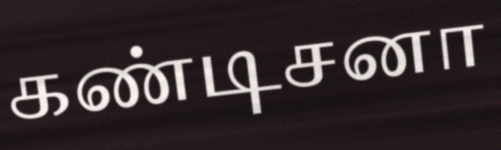
கண்டிசனா